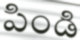
పిండి